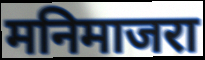
मनिमाजरा